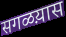
सगळय़ास